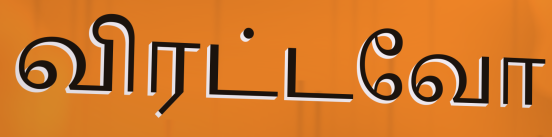
விரட்டவோ